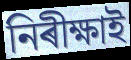
নিৰীক্ষাই